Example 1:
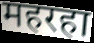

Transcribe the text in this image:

महरहा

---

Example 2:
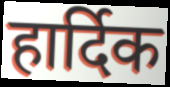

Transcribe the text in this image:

हार्दिक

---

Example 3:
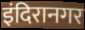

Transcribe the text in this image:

इंदिरानगर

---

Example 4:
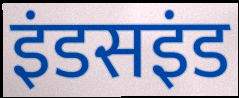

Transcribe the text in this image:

इंडसइंड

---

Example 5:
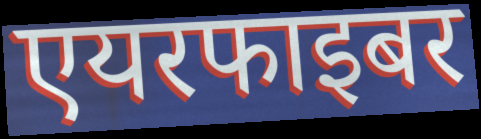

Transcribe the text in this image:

एयरफाइबर